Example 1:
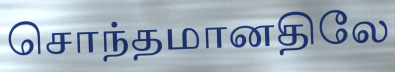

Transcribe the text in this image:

சொந்தமானதிலே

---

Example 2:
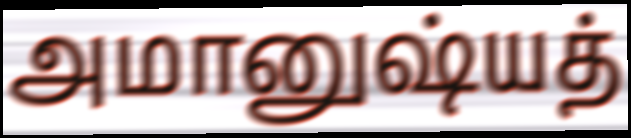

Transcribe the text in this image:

அமானுஷ்யத்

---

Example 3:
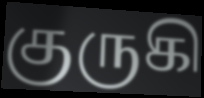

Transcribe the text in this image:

குருகி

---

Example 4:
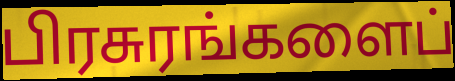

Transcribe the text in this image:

பிரசுரங்களைப்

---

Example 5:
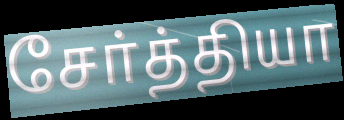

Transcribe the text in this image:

சேர்த்தியா